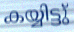
കയ്യിട്ടു്